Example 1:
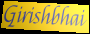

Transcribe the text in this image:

Girishbhai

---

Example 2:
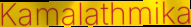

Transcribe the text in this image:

Kamalathmika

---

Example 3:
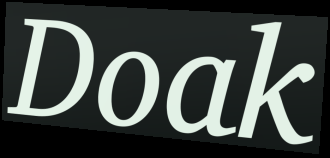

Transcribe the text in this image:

Doak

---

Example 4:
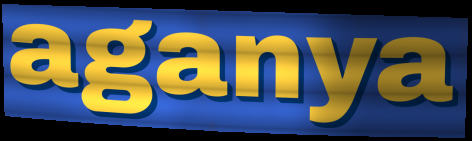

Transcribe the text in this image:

aganya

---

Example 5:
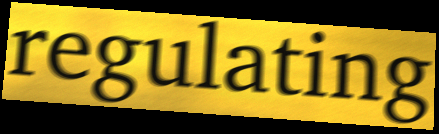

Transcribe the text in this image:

regulating